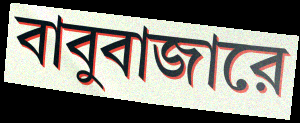
বাবুবাজারে